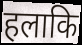
हलाकि